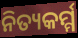
ନିତ୍ୟକର୍ମ୍ମ